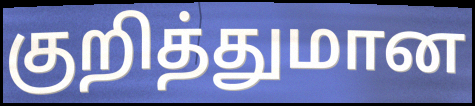
குறித்துமான